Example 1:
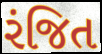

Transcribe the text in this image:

રંજિત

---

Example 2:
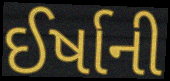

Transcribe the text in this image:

ઈર્ષાની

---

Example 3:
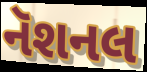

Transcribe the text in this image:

નૅશનલ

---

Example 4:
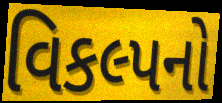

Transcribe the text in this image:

વિકલ્પનો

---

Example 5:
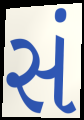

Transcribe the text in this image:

સં